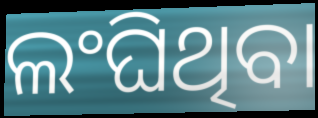
ଲଂଘିଥିବା